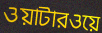
ওয়াটারওয়ে